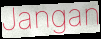
Jangan